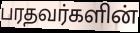
பரதவர்களின்